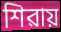
শিৱায়